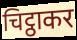
चिट्ठाकर